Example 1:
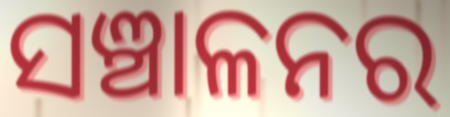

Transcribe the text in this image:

ସଞ୍ଚାଳନର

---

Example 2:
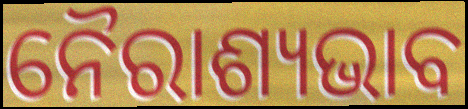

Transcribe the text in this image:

ନୈରାଶ୍ୟଭାବ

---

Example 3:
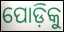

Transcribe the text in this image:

ପୋଡ଼ିକୁ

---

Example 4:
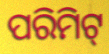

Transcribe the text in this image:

ପରିମିଟ୍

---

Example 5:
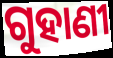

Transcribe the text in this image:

ଗୁହାଣୀ